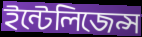
ইন্টেলিজেন্স